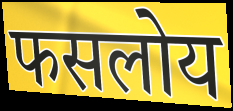
फसलोय